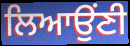
ਲਿਆਉਂਣੀ